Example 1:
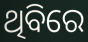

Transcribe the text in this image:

ଥିବିରେ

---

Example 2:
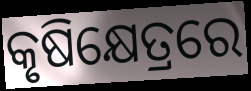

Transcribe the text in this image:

କୃଷିକ୍ଷେତ୍ରରେ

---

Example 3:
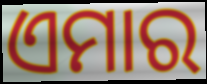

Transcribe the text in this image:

ଏମାର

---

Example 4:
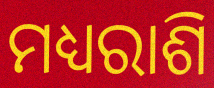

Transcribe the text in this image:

ମଧ୍ୟରାଶି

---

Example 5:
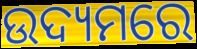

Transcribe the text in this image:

ଉଦ୍ୟମରେ